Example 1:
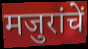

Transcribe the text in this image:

मजुरांचें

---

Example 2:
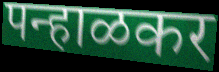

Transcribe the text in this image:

पन्हाळकर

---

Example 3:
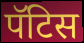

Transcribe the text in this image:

पॅटिस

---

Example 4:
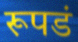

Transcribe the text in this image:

रूपडं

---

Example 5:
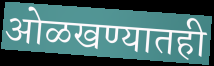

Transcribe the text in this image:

ओळखण्यातही